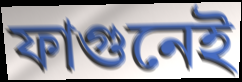
ফাগুনেই